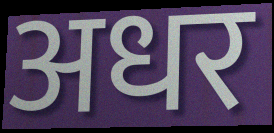
अधर